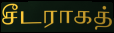
சீடராகத்